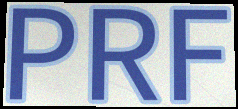
PRF